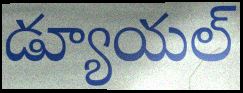
డ్యూయల్